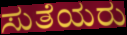
ಸುತೆಯರು